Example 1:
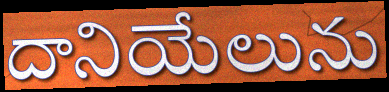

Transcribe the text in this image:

దానియేలును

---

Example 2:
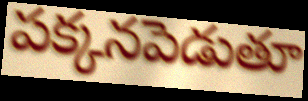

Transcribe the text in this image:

పక్కనపెడుతూ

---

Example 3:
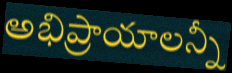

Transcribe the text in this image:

అభిప్రాయాలన్నీ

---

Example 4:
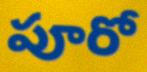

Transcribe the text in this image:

పూరో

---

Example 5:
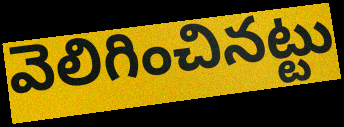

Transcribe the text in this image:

వెలిగించినట్టు